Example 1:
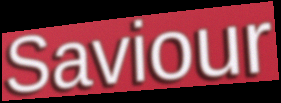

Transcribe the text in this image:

Saviour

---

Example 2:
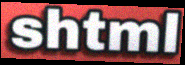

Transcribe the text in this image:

shtml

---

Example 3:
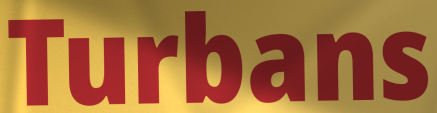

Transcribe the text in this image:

Turbans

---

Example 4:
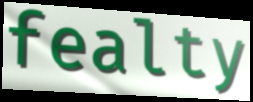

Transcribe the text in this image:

fealty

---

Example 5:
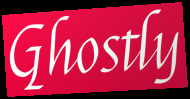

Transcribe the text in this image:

Ghostly